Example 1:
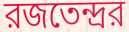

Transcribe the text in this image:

রজতেন্দ্রর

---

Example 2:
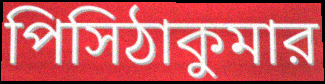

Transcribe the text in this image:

পিসিঠাকুমার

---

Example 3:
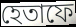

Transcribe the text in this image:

হেতাফে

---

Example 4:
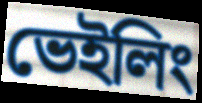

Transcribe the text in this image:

ভেইলিং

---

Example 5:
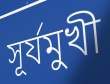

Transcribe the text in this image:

সূর্যমুখী